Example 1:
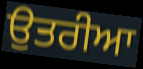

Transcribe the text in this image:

ਉਤਰੀਆ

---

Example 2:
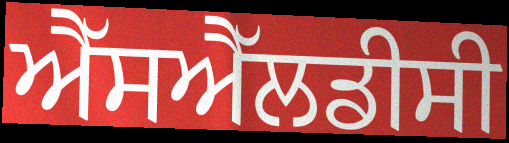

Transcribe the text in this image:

ਐੱਸਐੱਲਡੀਸੀ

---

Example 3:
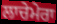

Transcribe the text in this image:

ਲਾਚੇਮੇਰਾ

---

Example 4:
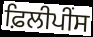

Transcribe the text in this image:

ਫ਼ਿਲੀਪੀਂਸ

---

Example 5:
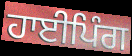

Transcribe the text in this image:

ਹਾਈਪਿੰਗ